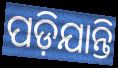
ପଡ଼ିଯାନ୍ତି